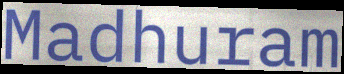
Madhuram